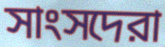
সাংসদেরা